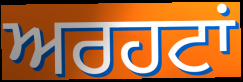
ਅਰਹਟਾਂ